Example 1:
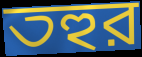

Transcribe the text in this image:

তহুর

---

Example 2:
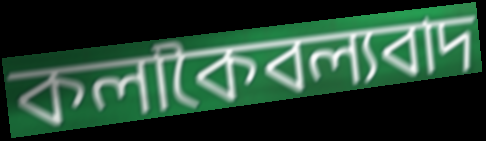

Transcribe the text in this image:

কলাকৈবল্যবাদ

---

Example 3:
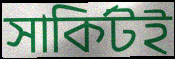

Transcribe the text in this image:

সার্কিটই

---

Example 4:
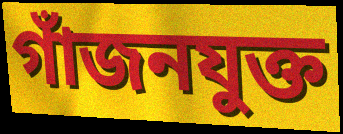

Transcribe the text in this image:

গাঁজনযুক্ত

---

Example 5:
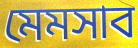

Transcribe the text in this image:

মেমসাব